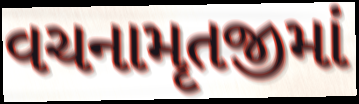
વચનામૃતજીમાં